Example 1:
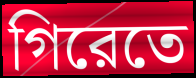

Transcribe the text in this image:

গিরেতে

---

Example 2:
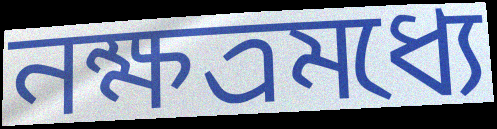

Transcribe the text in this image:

নক্ষত্রমধ্যে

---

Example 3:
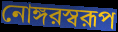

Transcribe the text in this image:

নোঙ্গরস্বরূপ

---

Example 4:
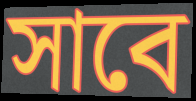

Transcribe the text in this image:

সাবে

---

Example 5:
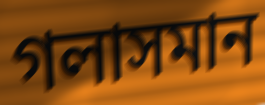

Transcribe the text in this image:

গলাসমান